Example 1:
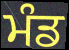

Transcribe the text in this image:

ਮੰਡ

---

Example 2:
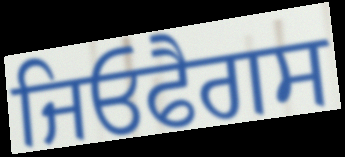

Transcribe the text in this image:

ਜਿਓਫੈਗਸ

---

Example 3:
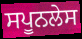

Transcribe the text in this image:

ਸਪੂਨਲੇਸ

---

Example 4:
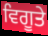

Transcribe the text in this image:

ਵਿਗੂਤੇ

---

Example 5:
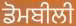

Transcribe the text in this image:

ਡੋਮਬੀਲੀ